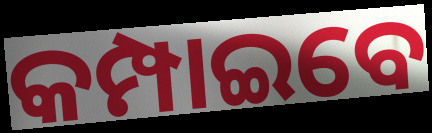
କମ୍ପାଇବେ